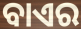
ବାଏର